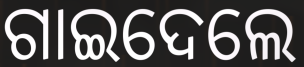
ଗାଇଦେଲେ